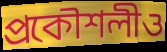
প্রকৌশলীও